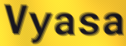
Vyasa